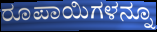
ರೂಪಾಯಿಗಳನ್ನೂ